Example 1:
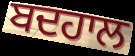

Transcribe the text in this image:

ਬਦਹਾਲ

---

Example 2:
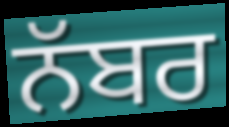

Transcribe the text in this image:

ਨੱਬਰ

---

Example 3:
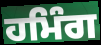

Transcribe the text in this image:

ਹਮਿੰਗ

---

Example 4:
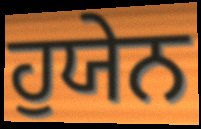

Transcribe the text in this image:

ਹੁਯੇਨ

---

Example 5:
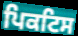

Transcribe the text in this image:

ਪਿਕਟਿਸ